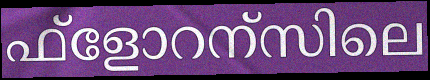
ഫ്ളോറന്സിലെ